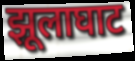
झूलाघाट